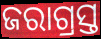
ଜରାଗ୍ରସ୍ତ